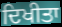
ਦਿਖੀਤਾ